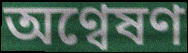
অণ্বেষণ